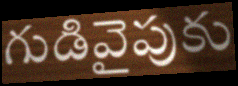
గుడివైపుకు